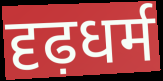
दृढ़धर्म